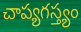
చాప్యగస్త్యం